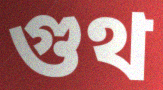
গুথ